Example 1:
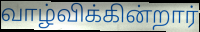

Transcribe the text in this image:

வாழ்விக்கின்றார்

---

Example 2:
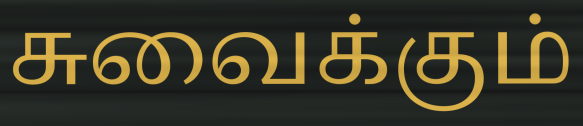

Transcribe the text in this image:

சுவைக்கும்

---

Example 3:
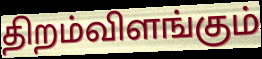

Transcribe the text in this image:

திறம்விளங்கும்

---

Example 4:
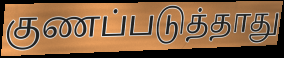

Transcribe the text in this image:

குணப்படுத்தாது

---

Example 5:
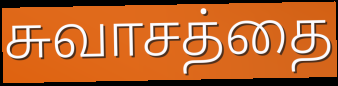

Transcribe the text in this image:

சுவாசத்தை